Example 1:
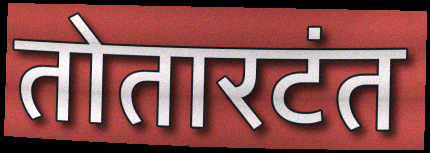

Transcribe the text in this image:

तोतारटंत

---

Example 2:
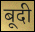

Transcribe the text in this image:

बूदी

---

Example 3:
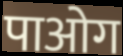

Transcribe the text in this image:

पाओग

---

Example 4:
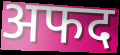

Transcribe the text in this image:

अफद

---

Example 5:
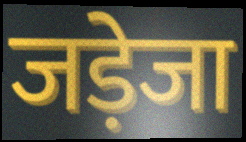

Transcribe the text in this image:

जड़ेजा